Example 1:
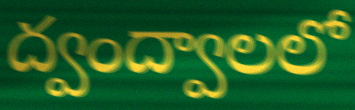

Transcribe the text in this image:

ద్వంద్వాలలో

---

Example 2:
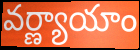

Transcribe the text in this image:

వర్ణ్యాయాం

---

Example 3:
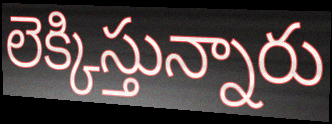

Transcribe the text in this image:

లెక్కిస్తున్నారు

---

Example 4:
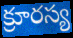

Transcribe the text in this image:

క్రూరస్య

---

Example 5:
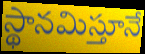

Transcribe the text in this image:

స్థానమిస్తూనే